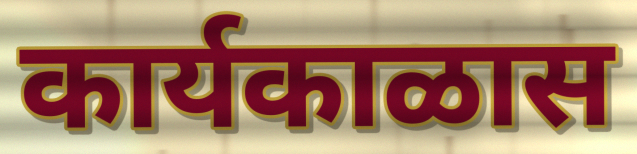
कार्यकाळास